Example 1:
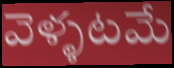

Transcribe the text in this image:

వెళ్ళటమే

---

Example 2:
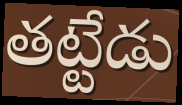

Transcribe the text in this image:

తట్టేడు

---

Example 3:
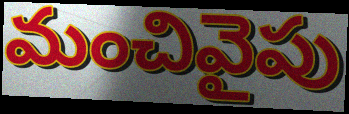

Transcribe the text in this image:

మంచివైపు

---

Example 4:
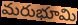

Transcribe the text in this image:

మరుభూమి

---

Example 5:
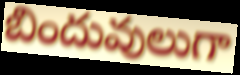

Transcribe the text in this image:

బిందువులుగా